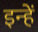
इन्‍हें